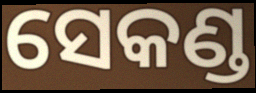
ସେକଣ୍ଡ